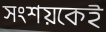
সংশয়কেই